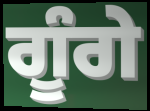
ਗੂੰਗੇ